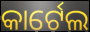
କାର୍ଟେଲ